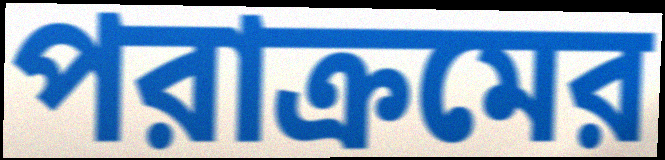
পরাক্রমের